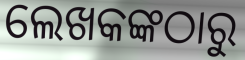
ଲେଖକଙ୍କଠାରୁ